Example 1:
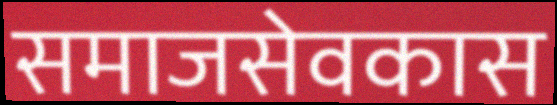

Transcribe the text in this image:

समाजसेवकास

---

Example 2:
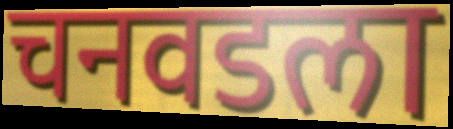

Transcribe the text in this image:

चनवडला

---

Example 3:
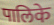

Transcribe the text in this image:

पालिके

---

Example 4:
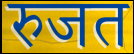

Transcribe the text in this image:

रुजत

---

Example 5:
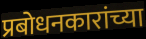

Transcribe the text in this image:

प्रबोधनकारांच्या